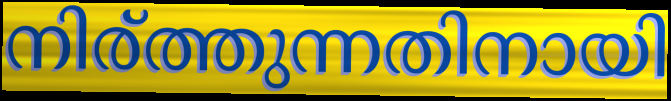
നിര്ത്തുന്നതിനായി